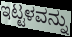
ಇಟ್ಟಳವನ್ನು